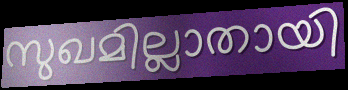
സുഖമില്ലാതായി